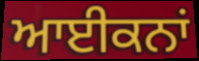
ਆਈਕਨਾਂ